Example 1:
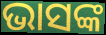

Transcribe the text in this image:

ଭାସଙ୍କ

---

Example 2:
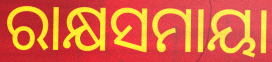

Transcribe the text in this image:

ରାକ୍ଷସମାୟା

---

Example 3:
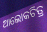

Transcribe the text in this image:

ଆଲୋକଚିତ୍ର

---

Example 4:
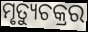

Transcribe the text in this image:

ମୃତ୍ୟୁଚକ୍ରର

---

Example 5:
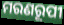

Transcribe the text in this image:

ମରଣରୂପୀ